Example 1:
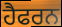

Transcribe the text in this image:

ਹੈਫਰਨ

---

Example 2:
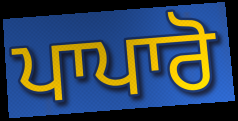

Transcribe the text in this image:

ਪਾਪਾਰੋ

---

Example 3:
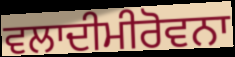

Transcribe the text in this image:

ਵਲਾਦੀਮੀਰੋਵਨਾ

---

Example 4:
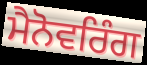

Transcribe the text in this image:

ਮੈਨੋਵਰਿੰਗ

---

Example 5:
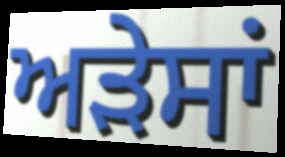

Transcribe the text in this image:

ਅੜੇਸਾਂ